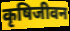
कृषिजीवन